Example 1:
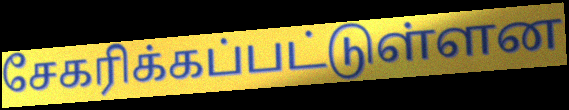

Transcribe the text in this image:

சேகரிக்கப்பட்டுள்ளன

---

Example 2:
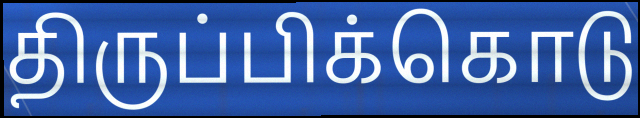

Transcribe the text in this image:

திருப்பிக்கொடு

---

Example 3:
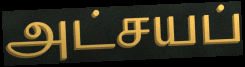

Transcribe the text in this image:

அட்சயப்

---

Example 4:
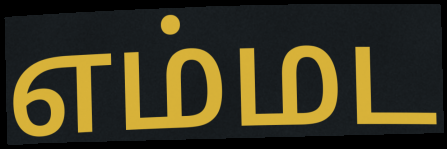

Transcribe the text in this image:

எம்மட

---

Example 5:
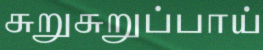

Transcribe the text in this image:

சுறுசுறுப்பாய்